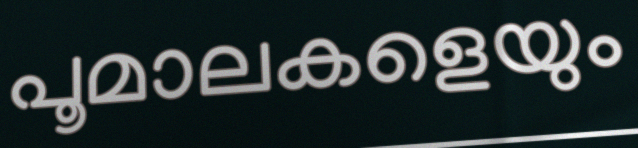
പൂമാലകളെയും